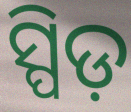
ସ୍ପିଡ଼